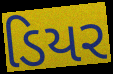
ડિયર